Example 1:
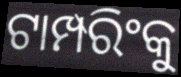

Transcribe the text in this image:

ଟାମ୍ପରିଂକୁ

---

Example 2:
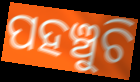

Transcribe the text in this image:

ପହଞ୍ଚୁଚି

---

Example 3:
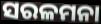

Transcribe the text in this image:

ସରଳମନା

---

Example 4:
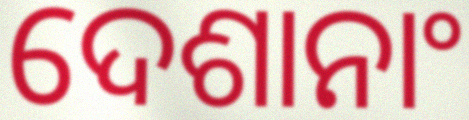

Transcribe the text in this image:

ଦେଶାନାଂ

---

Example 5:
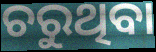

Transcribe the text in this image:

ଚରୁଥିବା